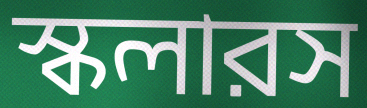
স্কলারস